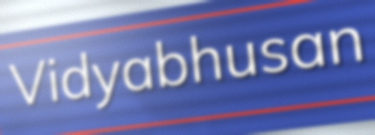
Vidyabhusan